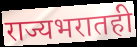
राज्यभरातही